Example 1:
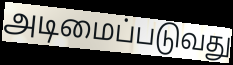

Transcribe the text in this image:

அடிமைப்படுவது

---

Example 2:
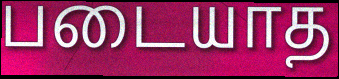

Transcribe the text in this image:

படையாத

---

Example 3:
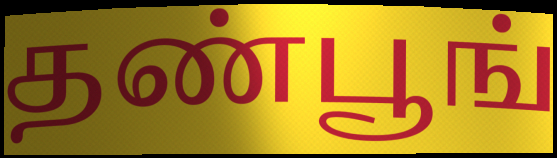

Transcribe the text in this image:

தண்பூங்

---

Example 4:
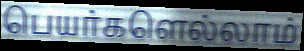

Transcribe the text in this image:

பெயர்களெல்லாம்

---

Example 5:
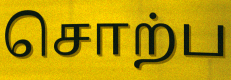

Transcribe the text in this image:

சொற்ப